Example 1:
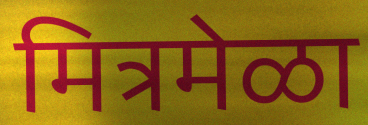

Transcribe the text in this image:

मित्रमेळा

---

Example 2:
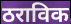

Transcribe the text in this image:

ठराविक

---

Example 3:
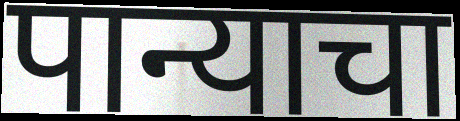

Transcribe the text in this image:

पान्याचा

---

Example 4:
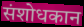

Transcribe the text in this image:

संशोधकान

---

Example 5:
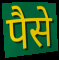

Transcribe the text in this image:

पैसे